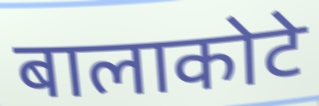
बालाकोटे